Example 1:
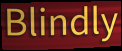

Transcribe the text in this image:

Blindly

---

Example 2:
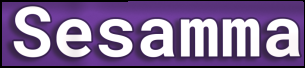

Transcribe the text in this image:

Sesamma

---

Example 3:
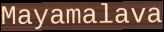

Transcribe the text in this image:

Mayamalava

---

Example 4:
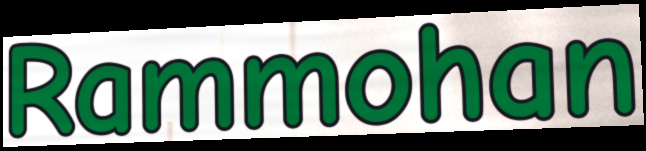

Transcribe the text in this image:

Rammohan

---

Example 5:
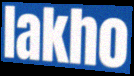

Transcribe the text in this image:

lakho